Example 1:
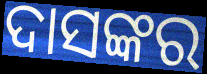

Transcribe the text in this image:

ଦାସଙ୍କର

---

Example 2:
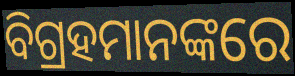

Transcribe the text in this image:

ବିଗ୍ରହମାନଙ୍କରେ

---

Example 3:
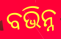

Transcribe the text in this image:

ବଭିନ୍ନ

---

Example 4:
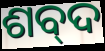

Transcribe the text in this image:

ଶବ୍‌ଦ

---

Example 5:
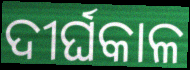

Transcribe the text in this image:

ଦୀର୍ଘକାଳ